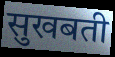
सुखबती